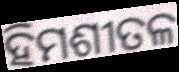
ହିମଶୀତଳ